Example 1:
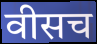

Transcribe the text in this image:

वीसच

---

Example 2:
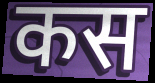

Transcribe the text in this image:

कस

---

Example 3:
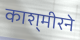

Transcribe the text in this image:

काश्मीरने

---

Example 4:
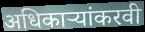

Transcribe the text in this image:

अधिकाऱ्यांकरवी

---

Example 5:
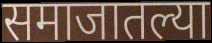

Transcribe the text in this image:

समाजातल्या